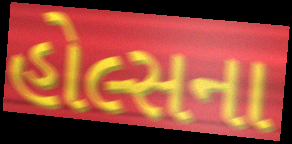
હોલ્સના